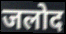
जलोद